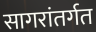
सागरांतर्गत